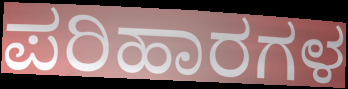
ಪರಿಹಾರಗಳ